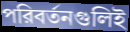
পরিবর্তনগুলিই